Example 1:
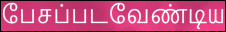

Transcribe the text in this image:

பேசப்படவேண்டிய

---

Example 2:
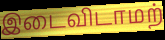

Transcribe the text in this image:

இடைவிடாமற்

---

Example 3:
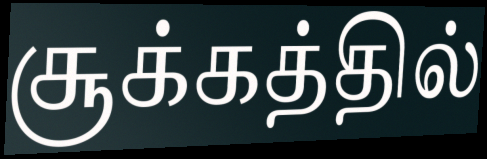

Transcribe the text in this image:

சூக்கத்தில்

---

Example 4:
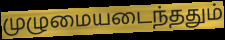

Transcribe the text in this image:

முழுமையடைந்ததும்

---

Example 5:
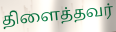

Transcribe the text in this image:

திளைத்தவர்